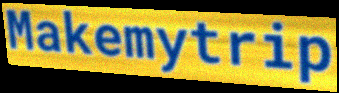
Makemytrip